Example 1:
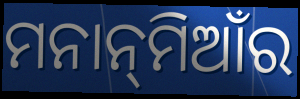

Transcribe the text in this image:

ମନାନ୍‌ମିଆଁର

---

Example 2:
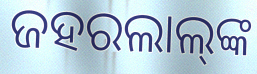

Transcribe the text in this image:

ଜହରଲାଲ୍‌ଙ୍କ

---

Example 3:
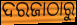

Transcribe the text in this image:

ଦରଜାଠାରୁ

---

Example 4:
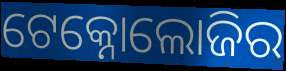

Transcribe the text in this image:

ଟେକ୍ନୋଲୋଜିର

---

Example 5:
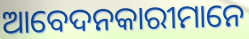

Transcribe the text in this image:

ଆବେଦନକାରୀମାନେ